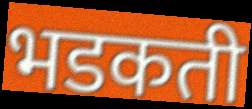
भडकती